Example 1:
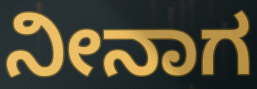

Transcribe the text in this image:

ನೀನಾಗ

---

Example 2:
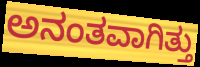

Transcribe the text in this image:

ಅನಂತವಾಗಿತ್ತು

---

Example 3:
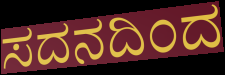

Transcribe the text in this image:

ಸದನದಿಂದ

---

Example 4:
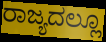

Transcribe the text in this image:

ರಾಜ್ಯದಲ್ಲೂ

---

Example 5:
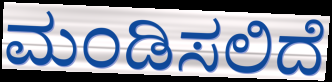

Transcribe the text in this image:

ಮಂಡಿಸಲಿದೆ